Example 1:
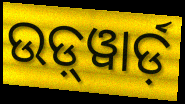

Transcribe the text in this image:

ଉଡ଼୍‍ୱାର୍ଡ଼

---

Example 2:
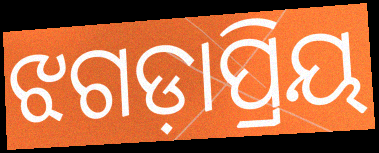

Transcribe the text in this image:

ଝଗଡ଼ାପ୍ରିୟ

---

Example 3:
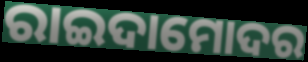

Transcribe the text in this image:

ରାଇଦାମୋଦର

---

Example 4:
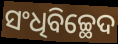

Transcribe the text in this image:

ସଂଧିବିଚ୍ଛେଦ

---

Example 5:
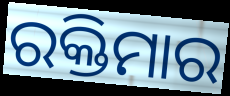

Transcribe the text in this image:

ରକ୍ତିମାର